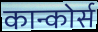
कान्कोर्स